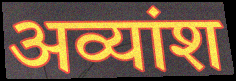
अव्यांश